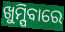
ଖୁମ୍ପିବାରେ